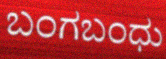
ಬಂಗಬಂಧು